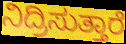
ನಿದ್ರಿಸುತ್ತಾರೆ